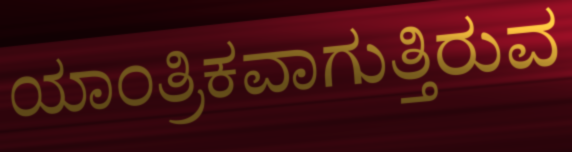
ಯಾಂತ್ರಿಕವಾಗುತ್ತಿರುವ